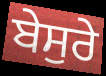
ਬੇਸੁਰੇ